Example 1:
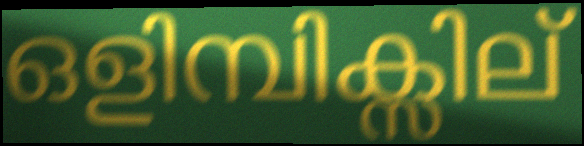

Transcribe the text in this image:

ഒളിമ്പിക്സില്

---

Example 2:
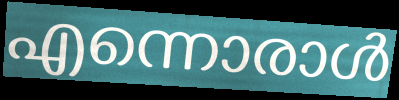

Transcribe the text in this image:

എന്നൊരാൾ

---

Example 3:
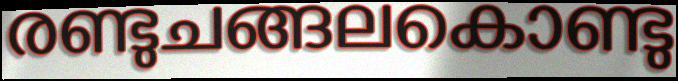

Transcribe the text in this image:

രണ്ടുചങ്ങലകൊണ്ടു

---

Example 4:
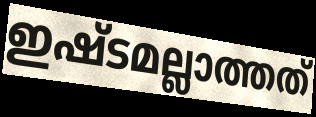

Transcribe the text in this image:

ഇഷ്ടമല്ലാത്തത്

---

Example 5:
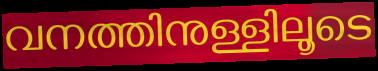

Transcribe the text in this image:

വനത്തിനുള്ളിലൂടെ